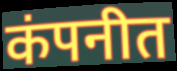
कंपनीत